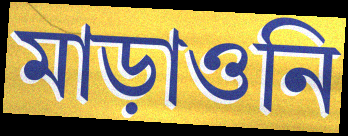
মাড়াওনি